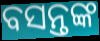
ବସନ୍ତଙ୍କ